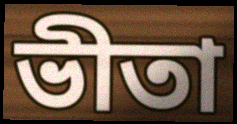
ভীতা